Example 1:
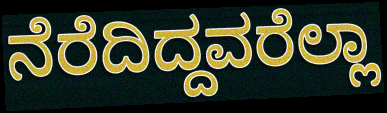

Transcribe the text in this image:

ನೆರೆದಿದ್ದವರೆಲ್ಲಾ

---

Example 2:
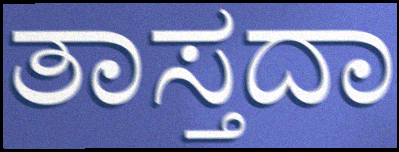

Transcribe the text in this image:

ತಾಸ್ತದಾ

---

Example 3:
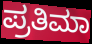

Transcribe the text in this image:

ಪ್ರತಿಮಾ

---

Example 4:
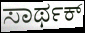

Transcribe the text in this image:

ಸಾರ್ಥಕ್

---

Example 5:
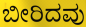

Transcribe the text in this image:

ಬೀರಿದವು